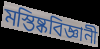
মস্তিষ্কবিজ্ঞানী